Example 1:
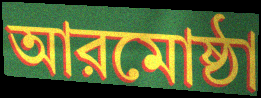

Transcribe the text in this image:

আরমোষ্ঠা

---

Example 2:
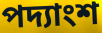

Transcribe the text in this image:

পদ্যাংশ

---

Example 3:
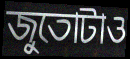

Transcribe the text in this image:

জুতোটাও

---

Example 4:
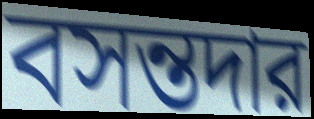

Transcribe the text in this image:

বসন্তদার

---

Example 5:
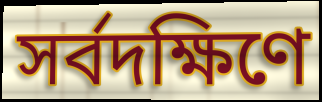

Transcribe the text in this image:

সর্বদক্ষিণে